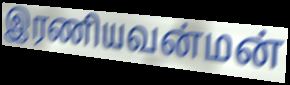
இரணியவன்மன்